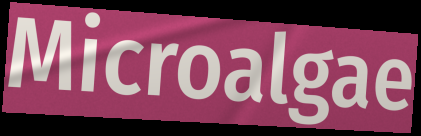
Microalgae